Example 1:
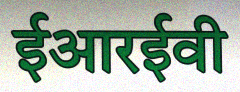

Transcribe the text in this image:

ईआरईवी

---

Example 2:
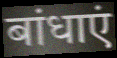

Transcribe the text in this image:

बांधाएं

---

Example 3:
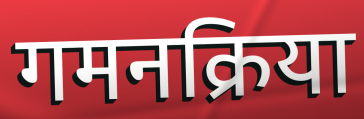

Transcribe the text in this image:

गमनक्रिया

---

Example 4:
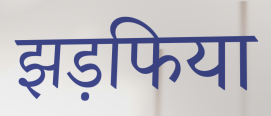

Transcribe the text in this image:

झड़फिया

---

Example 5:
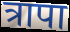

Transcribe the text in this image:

त्रापा